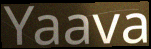
Yaava